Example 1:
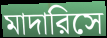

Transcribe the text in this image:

মাদারিসে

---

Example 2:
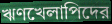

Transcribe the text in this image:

ঋণখেলাপিদের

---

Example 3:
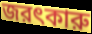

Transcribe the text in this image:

জরৎকারু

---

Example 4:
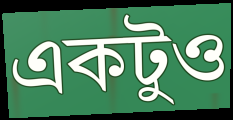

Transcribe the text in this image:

একটুও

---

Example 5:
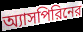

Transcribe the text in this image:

অ্যাসপিরিনের